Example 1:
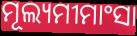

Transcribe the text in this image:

ମୂଲ୍ୟମୀମାଂସା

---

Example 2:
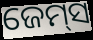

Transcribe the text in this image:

ଜେମ୍‍ସ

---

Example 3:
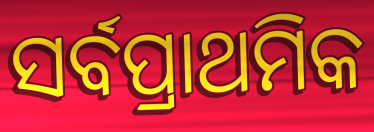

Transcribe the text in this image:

ସର୍ବପ୍ରାଥମିକ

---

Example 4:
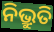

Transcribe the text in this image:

ନିଭ୍ରୁତି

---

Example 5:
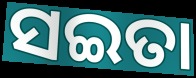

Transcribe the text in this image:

ସଇତା